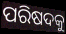
ପରିଷଦକୁ